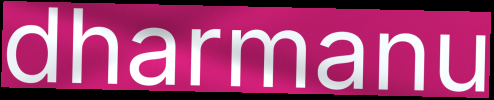
dharmanu